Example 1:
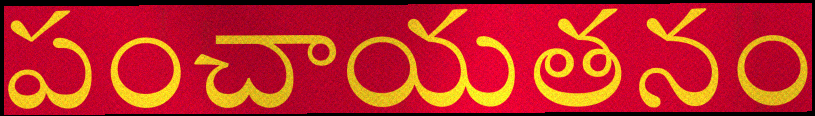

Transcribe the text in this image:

పంచాయతనం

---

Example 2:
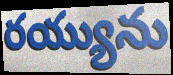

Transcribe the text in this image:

రయ్యును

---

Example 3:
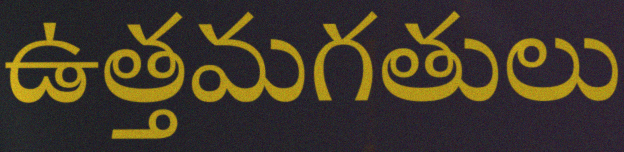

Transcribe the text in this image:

ఉత్తమగతులు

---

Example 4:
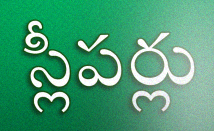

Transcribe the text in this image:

స్లీపర్లు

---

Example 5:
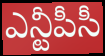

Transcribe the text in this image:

ఎన్టీపీసీ